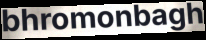
bhromonbagh